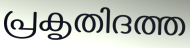
പ്രകൃതിദത്ത